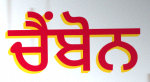
ਚੈਂਬੋਨ